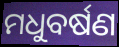
ମଧୁବର୍ଷଣ